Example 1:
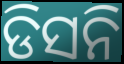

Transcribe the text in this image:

ଡିସନି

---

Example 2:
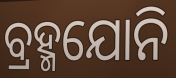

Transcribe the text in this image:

ବ୍ରହ୍ମଯୋନି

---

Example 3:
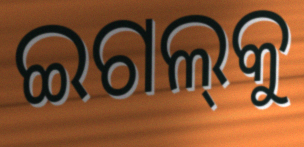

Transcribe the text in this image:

ଇଗଲ୍‌କୁ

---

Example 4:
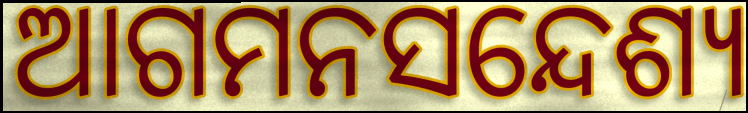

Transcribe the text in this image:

ଆଗମନସନ୍ଦେଶ୍ୟ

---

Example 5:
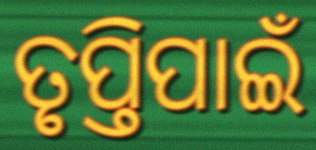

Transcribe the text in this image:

ତୃପ୍ତିପାଇଁ